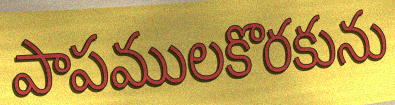
పాపములకొరకును